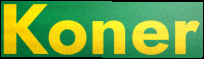
Koner